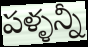
పళ్ళన్నీ